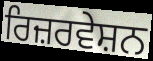
ਰਿਜ਼ਰਵੇਸ਼ਨ